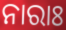
ନାରାଃ